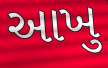
આખુ